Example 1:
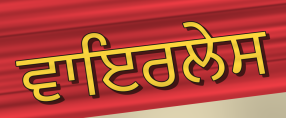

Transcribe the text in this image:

ਵਾਇਰਲੇਸ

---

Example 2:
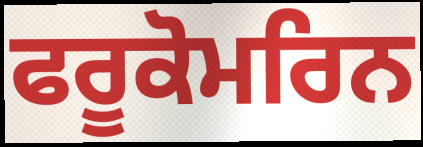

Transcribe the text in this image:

ਫਰੂਕੋਮਰਿਨ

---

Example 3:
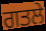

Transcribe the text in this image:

ਗਤਲੇ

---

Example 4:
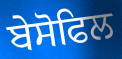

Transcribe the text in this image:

ਬੇਸੋਫਿਲ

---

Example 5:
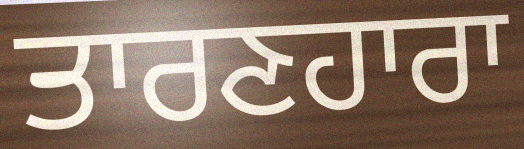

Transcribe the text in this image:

ਤਾਰਣਹਾਰਾ